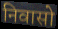
निवासो